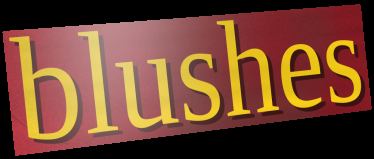
blushes